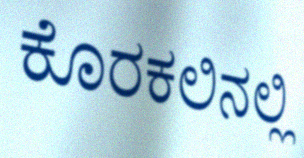
ಕೊರಕಲಿನಲ್ಲಿ